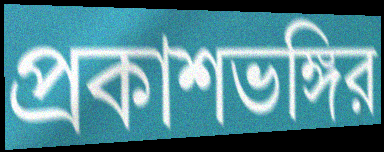
প্রকাশভঙ্গির